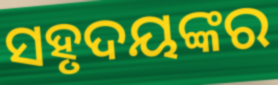
ସହୃଦୟଙ୍କର